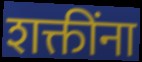
शक्तींना